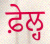
ਫ਼ੇਲ੍ਹ